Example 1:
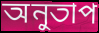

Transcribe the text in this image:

অনুতাপ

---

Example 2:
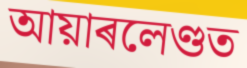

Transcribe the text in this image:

আয়াৰলেণ্ডত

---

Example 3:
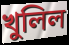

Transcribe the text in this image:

খুলিল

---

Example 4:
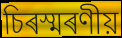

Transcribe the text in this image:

চিৰস্মৰণীয়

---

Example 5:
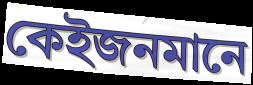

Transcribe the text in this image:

কেইজনমানে